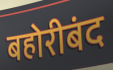
बहोरीबंद